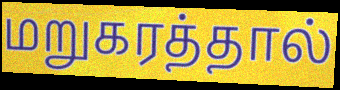
மறுகரத்தால்